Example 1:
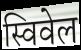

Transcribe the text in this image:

स्विवेल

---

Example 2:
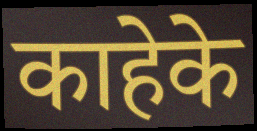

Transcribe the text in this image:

काहेके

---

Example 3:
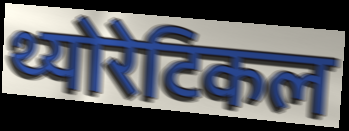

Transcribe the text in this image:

थ्योरेटिकल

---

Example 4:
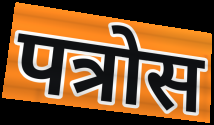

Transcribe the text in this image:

पत्रोस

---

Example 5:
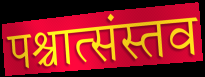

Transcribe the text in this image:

पश्चात्संस्तव